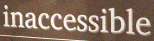
inaccessible